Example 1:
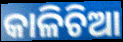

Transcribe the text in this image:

କାଳିଚିଆ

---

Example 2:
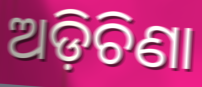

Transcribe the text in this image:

ଅଡ଼ିଚିଣା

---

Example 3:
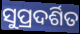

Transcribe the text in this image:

ସୁପ୍ରଦର୍ଶିତ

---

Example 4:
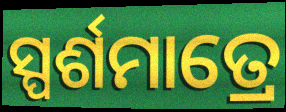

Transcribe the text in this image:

ସ୍ପର୍ଶମାତ୍ରେ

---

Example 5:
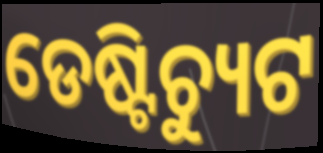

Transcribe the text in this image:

ଡେଷ୍ଟିଚ୍ୟୁଟ